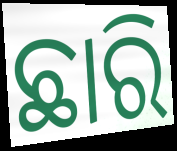
ଛାରି